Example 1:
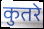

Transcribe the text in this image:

कुतरे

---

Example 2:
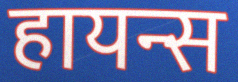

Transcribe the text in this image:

हायन्स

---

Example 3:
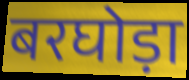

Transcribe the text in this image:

बरघोड़ा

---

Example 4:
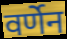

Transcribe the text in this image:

वर्णेन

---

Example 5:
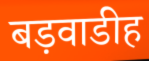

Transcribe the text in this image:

बड़वाडीह